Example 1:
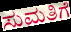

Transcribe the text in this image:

ಸುಮತಿಗೆ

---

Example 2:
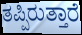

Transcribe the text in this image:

ತಪ್ಪಿರುತ್ತಾರೆ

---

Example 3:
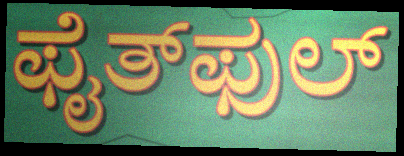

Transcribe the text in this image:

ಫೈತ್‌ಫುಲ್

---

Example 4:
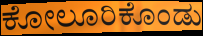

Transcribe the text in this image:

ಕೋಲೂರಿಕೊಂಡು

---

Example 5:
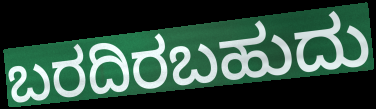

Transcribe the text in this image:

ಬರದಿರಬಹುದು